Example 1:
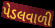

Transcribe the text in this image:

પેડલવાળી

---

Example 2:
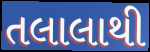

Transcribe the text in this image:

તલાલાથી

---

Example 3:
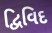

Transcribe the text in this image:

દ્વિવિદ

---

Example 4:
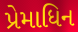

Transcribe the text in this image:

પ્રેમાધિન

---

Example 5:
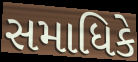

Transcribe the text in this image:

સમાધિકે